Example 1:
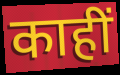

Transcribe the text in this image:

काहीं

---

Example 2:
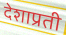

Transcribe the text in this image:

देशाप्रती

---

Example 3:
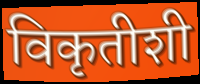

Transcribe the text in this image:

विकृतीशी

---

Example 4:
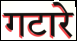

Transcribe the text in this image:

गटारे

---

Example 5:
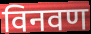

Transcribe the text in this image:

विनवण